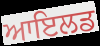
ਆਇਲਡ